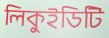
লিকুইডিটি